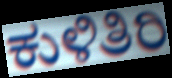
ಕುಳಿತಿರಿ